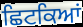
ਛਿਟਕਿਆਂ